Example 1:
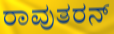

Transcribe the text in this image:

ರಾವುತರನ್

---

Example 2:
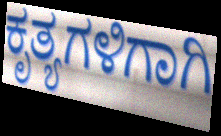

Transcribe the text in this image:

ಕೃತ್ಯಗಳಿಗಾಗಿ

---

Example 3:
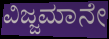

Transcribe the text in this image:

ವಿಜ್ಜಮಾನೇ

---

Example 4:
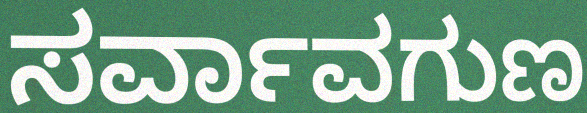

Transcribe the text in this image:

ಸರ್ವಾವಗುಣ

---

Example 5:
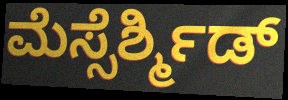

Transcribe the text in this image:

ಮೆಸ್ಸೆರ್ಶ್ಮಿಡ್